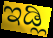
ಇಡ್ಲಿ